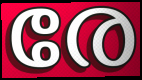
രേ